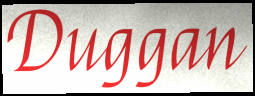
Duggan